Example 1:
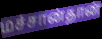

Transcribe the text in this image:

மச்சான்தான்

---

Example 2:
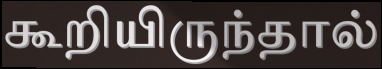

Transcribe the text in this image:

கூறியிருந்தால்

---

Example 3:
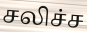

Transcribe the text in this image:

சலிச்ச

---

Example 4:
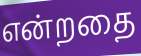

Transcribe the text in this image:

என்றதை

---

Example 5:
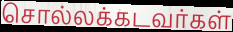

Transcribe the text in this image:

சொல்லக்கடவர்கள்